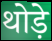
थोड़े